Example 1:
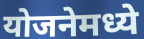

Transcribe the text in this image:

योजनेमध्ये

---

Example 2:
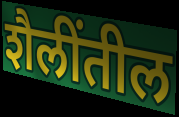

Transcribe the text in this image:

शैलींतील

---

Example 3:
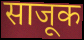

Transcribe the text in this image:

साजूक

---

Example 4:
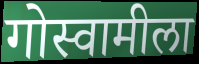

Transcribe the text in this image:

गोस्वामीला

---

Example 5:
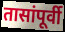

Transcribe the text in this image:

तासांपूर्वी